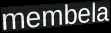
membela